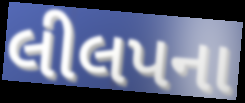
લીલપના